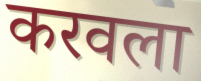
करवला